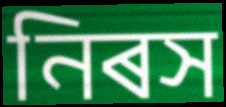
নিৰস